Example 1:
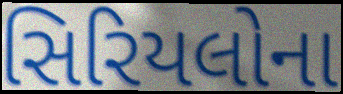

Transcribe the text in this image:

સિરિયલોના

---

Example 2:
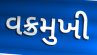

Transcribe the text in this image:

વક્રમુખી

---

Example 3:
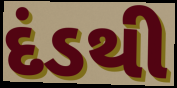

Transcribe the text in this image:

દંડથી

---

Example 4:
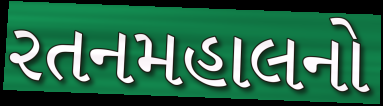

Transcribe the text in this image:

રતનમહાલનો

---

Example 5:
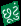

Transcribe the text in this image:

છૂટું